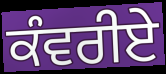
ਕੰਵਰੀਏ